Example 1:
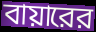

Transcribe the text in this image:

বায়ারের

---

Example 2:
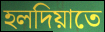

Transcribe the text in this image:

হলদিয়াতে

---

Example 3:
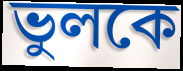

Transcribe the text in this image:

ভুলকে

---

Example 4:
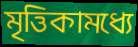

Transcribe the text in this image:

মৃত্তিকামধ্যে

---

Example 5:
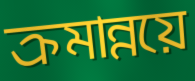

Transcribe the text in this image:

ক্রমান্নয়ে